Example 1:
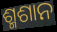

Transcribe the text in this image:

ଶ୍ମଶାନ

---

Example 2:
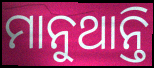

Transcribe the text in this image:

ମାନୁଥାନ୍ତି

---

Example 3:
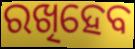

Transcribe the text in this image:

ରଖିହେବ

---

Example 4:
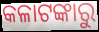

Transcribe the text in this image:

କଳାଟଙ୍କାରୁ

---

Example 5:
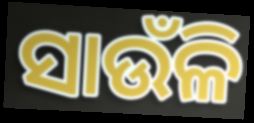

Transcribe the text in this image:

ସାଉଁଳି